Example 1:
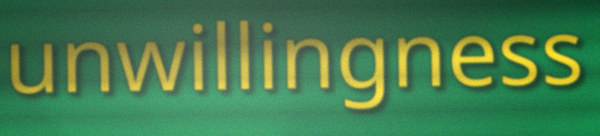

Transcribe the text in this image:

unwillingness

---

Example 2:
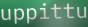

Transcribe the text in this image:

uppittu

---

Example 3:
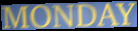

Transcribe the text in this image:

MONDAY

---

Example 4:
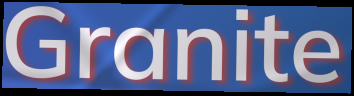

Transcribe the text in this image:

Granite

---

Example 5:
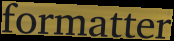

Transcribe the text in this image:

formatter